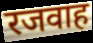
रजवाह